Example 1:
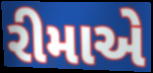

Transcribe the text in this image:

રીમાએ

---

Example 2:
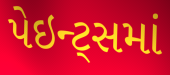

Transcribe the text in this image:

પેઇન્ટ્સમાં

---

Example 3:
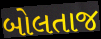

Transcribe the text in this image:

બોલતાજ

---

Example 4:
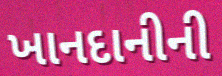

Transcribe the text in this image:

ખાનદાનીની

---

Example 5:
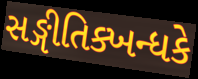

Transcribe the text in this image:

સઙ્ગીતિક્ખન્ધકે